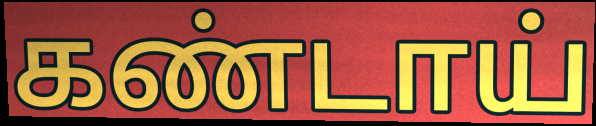
கண்டாய்